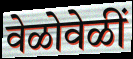
वेळोवेळीं